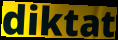
diktat